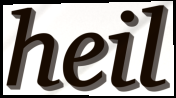
heil